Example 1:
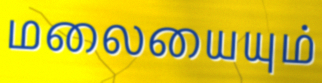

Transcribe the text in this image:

மலையையும்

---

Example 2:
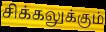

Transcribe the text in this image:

சிக்கலுக்கும்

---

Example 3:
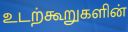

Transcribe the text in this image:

உடற்கூறுகளின்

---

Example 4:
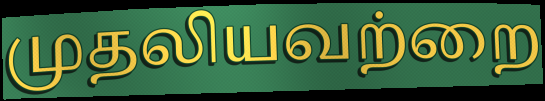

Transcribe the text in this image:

முதலியவற்றை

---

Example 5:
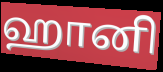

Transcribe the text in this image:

ஹானி